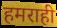
हमराही